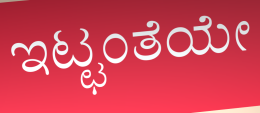
ಇಟ್ಟಂತೆಯೇ